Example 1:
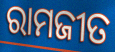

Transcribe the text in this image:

ରାମଜୀତ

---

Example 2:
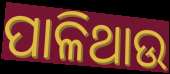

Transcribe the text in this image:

ପାଳିଥାଉ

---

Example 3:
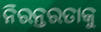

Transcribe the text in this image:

ନିରନ୍ତରତାକୁ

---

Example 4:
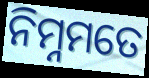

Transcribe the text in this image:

ନିମ୍ନମତେ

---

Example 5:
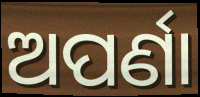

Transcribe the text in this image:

ଅପର୍ଣା